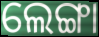
ଲେଙ୍ଗା